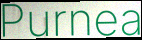
Purnea